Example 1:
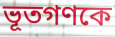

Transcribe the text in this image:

ভূতগণকে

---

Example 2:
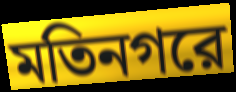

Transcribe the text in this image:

মতিনগরে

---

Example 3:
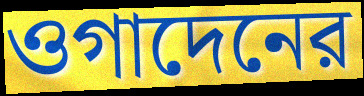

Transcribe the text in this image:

ওগাদেনের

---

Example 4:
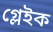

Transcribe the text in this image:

গ্লেইক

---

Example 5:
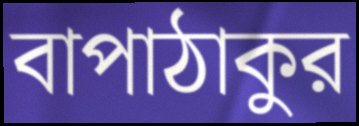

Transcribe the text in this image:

বাপাঠাকুর